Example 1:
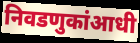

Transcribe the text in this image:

निवडणुकांआधी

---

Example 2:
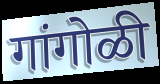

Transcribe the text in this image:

गांगोळी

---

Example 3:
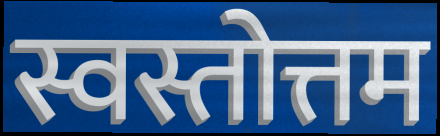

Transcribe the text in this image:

स्वस्तोत्तम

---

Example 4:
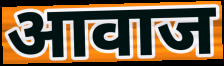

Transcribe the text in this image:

आवाज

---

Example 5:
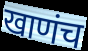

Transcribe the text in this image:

खाणंच